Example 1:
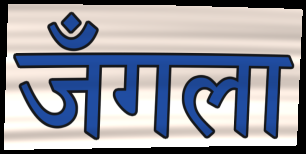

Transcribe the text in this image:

जँगला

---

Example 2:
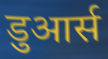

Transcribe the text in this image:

डुआर्स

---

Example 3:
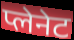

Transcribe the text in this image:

प्लेनेट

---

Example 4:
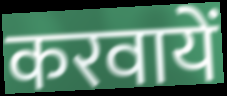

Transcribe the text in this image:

करवायें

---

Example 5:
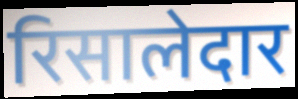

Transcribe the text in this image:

रिसालेदार